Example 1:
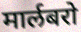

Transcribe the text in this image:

मार्लबरो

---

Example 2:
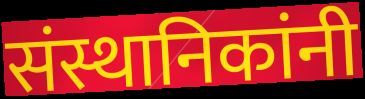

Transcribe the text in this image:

संस्थानिकांनी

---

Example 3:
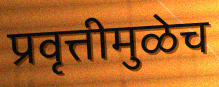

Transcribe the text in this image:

प्रवृत्तीमुळेच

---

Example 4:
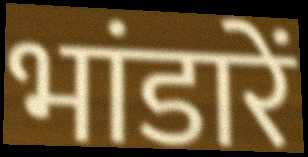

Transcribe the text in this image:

भांडारें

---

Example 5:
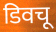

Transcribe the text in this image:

डिवचू